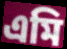
এমি